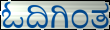
ಓದಿಗಿಂತ